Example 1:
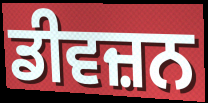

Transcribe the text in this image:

ਡੀਵਜ਼ਨ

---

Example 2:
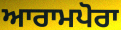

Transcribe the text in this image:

ਆਰਾਮਪੋਰਾ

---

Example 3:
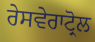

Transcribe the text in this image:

ਰੇਸਵੇਰਾਟ੍ਰੋਲ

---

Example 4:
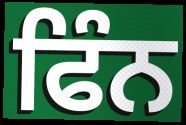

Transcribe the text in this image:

ਫਿੰਨ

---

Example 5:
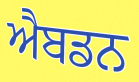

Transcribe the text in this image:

ਐਬਡਨ